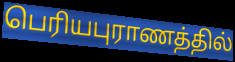
பெரியபுராணத்தில்